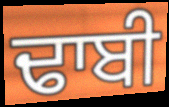
ਢਾਬੀ